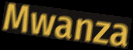
Mwanza